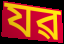
যৱ